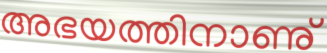
അഭയത്തിനാണു്